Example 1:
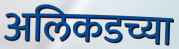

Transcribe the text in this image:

अलिकडच्या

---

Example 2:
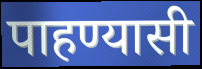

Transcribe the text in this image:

पाहण्यासी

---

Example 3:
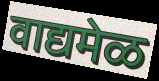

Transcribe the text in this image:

वाद्यमेळ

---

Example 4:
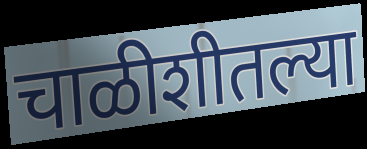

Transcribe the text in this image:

चाळीशीतल्या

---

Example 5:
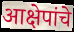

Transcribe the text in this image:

आक्षेपांचे